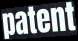
patent